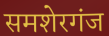
समशेरगंज